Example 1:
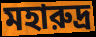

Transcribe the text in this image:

মহারুদ্র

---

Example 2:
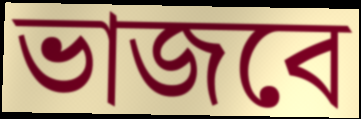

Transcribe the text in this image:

ভাজবে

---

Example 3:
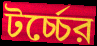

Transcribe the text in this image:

টর্চ্চের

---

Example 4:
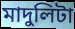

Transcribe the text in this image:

মাদুলিটা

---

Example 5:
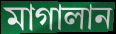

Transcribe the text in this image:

মাগালান